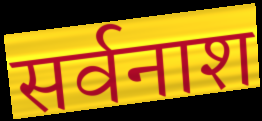
सर्वनाश